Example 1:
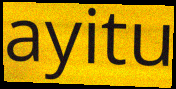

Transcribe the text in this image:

ayitu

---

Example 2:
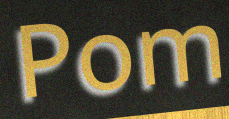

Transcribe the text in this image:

Pom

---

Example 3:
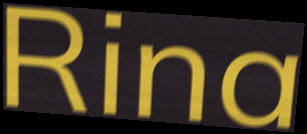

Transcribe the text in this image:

Rina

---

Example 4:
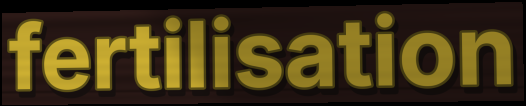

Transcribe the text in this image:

fertilisation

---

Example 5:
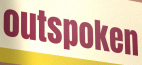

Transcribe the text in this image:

outspoken